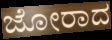
ಜೋರಾದ